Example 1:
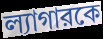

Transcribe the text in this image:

ল্যাগারকে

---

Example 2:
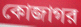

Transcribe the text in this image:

কোজাগর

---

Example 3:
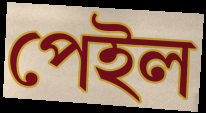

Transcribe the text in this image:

পেইল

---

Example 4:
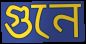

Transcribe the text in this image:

গুনে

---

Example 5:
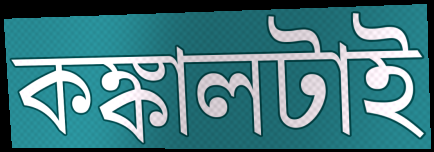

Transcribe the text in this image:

কঙ্কালটাই